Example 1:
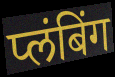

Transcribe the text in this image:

प्लंबिंग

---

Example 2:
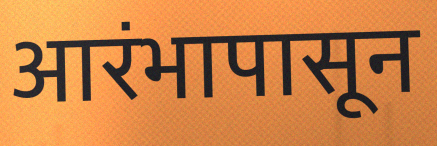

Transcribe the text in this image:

आरंभापासून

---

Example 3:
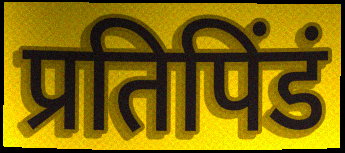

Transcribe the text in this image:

प्रतिपिंडं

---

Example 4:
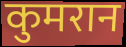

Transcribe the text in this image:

कुमरान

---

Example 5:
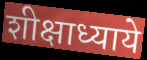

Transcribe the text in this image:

शीक्षाध्याये